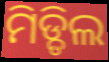
ମିଡ୍ଡିଲ